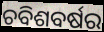
ଚବିଶବର୍ଷର